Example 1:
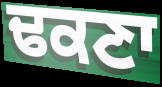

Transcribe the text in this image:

ਢਕਣਾ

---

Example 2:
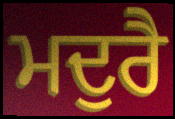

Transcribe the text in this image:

ਮਦੁਰੈ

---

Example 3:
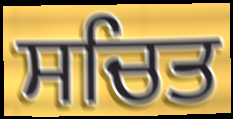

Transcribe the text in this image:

ਸਚਿਤ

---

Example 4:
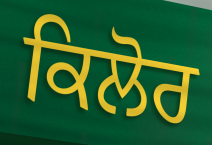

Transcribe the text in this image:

ਕਿਲੋਰ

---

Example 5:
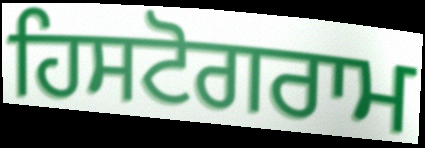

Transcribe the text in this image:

ਹਿਸਟੋਗਰਾਮ